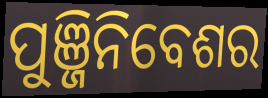
ପୁଞ୍ଜିନିବେଶର